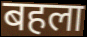
बहला